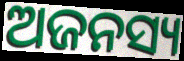
ଅଜନସ୍ୟ